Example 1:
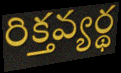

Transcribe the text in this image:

రిక్తవ్యర్థ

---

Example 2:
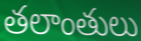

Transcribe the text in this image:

తలాంతులు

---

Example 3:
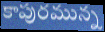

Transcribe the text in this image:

కాపురమున్న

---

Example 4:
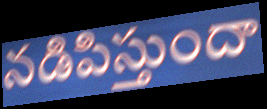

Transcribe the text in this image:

నడిపిస్తుందా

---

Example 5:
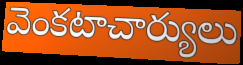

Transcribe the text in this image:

వెంకటాచార్యులు